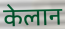
केलान